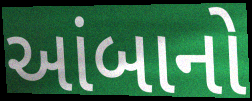
આંબાનો